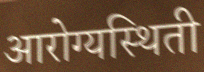
आरोग्यस्थिती